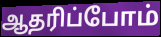
ஆதரிப்போம்